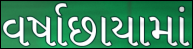
વર્ષાછાયામાં